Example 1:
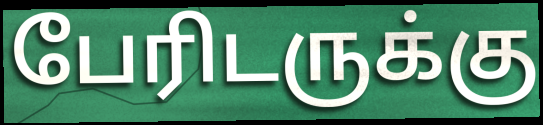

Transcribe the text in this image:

பேரிடருக்கு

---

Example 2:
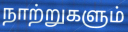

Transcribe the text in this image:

நாற்றுகளும்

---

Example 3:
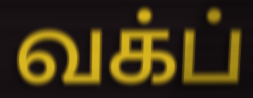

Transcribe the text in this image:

வக்ப்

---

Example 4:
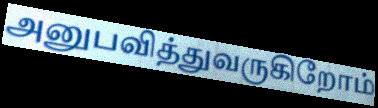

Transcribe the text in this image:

அனுபவித்துவருகிறோம்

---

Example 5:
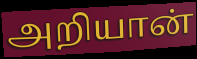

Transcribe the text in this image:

அறியான்